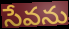
సేవను